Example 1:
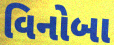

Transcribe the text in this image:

વિનોબા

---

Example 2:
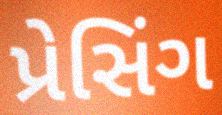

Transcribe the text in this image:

પ્રેસિંગ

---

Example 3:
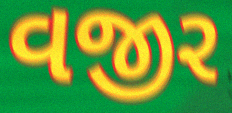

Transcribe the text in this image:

વજીર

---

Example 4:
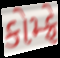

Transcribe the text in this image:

કોમ્ફ્રે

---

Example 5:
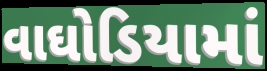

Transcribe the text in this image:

વાઘોડિયામાં